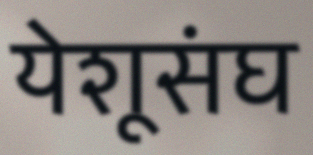
येशूसंघ